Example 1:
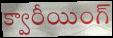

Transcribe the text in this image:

క్వారీయింగ్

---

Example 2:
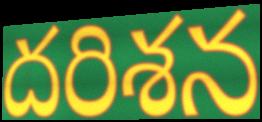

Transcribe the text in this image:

దరిశన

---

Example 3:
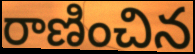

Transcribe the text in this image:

రాణించిన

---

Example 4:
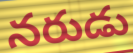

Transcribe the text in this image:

నరుడు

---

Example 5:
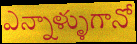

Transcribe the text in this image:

ఎన్నాళ్ళుగానో